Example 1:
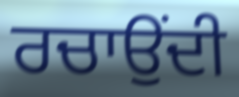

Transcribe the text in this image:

ਰਚਾਉਂਦੀ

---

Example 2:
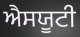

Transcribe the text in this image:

ਐਸਯੂਟੀ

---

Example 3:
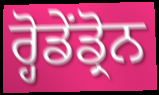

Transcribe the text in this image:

ਰ੍ਹੋਡੇਂਡ੍ਰੋਨ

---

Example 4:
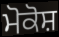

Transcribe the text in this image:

ਮੋਕੋਸ਼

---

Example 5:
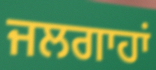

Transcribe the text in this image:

ਜਲਗਾਹਾਂ